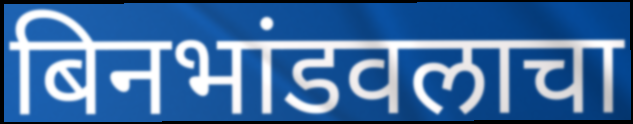
बिनभांडवलाचा